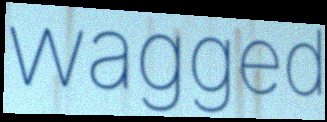
wagged